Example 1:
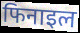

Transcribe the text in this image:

फिनाइल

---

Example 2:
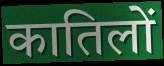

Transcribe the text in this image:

कातिलों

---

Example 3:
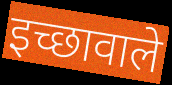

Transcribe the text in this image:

इच्छावाले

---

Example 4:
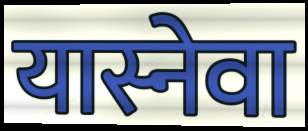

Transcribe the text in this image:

यास्नेवा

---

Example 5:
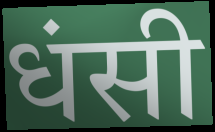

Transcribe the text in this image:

धंसी